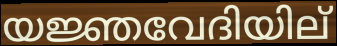
യജ്ഞവേദിയില്